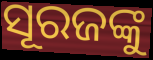
ସୂରଜଙ୍କୁ